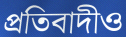
প্রতিবাদীও